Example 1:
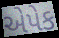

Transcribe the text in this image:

એપેક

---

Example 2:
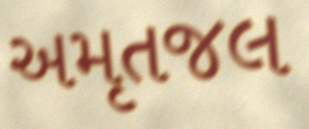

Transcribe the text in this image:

અમૃતજલ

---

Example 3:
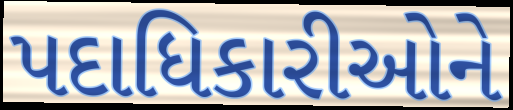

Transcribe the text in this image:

પદાધિકારીઓને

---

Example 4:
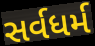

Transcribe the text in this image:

સર્વધર્મ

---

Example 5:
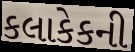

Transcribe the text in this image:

કલાકેકની